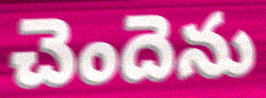
చెందెను